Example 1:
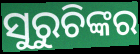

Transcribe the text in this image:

ସୁରୁଚିଙ୍କର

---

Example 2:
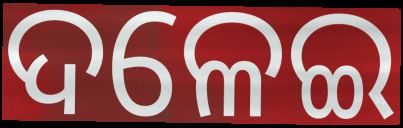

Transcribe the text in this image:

ଦଳେଇ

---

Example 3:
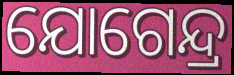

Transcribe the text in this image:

ଯୋଗେନ୍ଦ୍ର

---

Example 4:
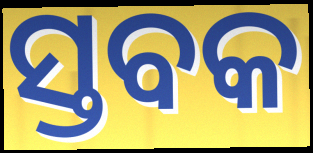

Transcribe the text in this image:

ସ୍ତବକ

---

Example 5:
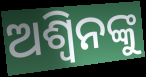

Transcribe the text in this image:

ଅଶ୍ବିନଙ୍କୁ